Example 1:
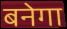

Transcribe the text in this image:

बनेगा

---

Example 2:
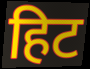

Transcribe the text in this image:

हिट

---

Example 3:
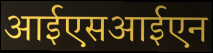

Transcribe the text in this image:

आईएसआईएन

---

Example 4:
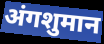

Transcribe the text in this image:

अंगशुमान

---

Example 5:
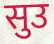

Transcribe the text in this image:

सुउ